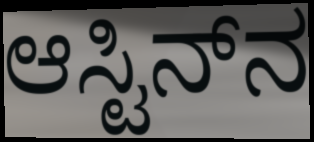
ಆಸ್ಟಿನ್‌ನ